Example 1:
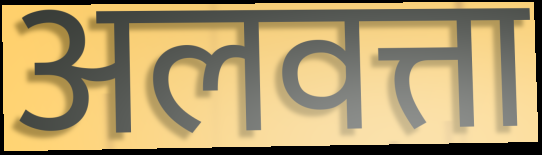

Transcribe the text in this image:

अलवत्ता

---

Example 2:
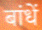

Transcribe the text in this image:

बांधें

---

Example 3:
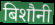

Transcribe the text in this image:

बिशौनी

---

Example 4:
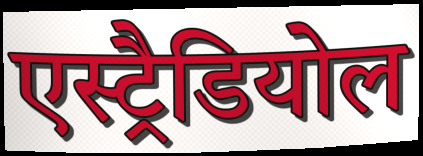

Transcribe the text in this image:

एस्ट्रैडियोल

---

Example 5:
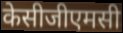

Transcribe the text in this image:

केसीजीएमसी